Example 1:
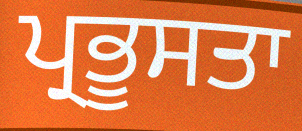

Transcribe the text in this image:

ਪ੍ਰਭੂਸਤਾ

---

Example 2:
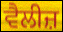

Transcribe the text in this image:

ਵੈਲੀਜ਼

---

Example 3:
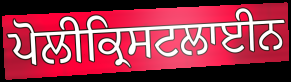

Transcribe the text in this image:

ਪੋਲੀਕ੍ਰਿਸਟਲਾਈਨ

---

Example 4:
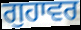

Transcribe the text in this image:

ਗੁਹਾਵਰ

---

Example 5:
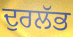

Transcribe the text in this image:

ਦੁਰਲੱਭ